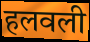
हलवली